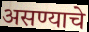
असण्याचे